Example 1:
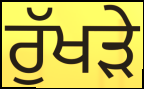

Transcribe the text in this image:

ਰੁੱਖੜੇ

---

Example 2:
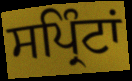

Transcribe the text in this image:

ਸਪ੍ਰਿੰਟਾਂ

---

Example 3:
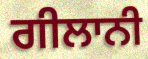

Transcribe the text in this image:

ਗੀਲਾਨੀ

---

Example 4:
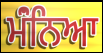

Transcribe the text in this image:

ਮੰਂਨਿਆ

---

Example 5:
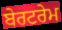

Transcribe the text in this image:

ਬੇਰਟਰੇਮ